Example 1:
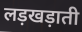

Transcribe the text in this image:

लड़खड़ाती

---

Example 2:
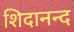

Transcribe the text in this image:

शिदानन्द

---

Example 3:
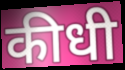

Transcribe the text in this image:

कीधी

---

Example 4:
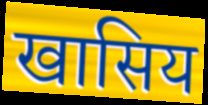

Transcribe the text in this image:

खासिय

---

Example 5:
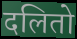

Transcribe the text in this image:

दलितो